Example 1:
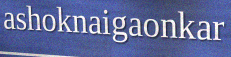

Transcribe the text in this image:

ashoknaigaonkar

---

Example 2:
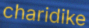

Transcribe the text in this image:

charidike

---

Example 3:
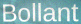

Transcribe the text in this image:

Bollant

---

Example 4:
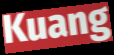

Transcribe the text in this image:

Kuang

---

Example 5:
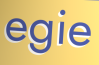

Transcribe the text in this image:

egie